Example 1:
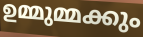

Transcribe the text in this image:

ഉമ്മുമ്മക്കും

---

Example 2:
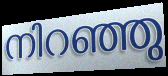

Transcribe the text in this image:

നിറഞ്ഞു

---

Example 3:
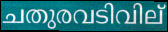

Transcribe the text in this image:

ചതുരവടിവില്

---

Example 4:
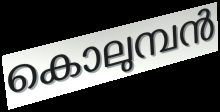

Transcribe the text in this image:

കൊലുമ്പൻ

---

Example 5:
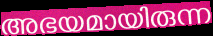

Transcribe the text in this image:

അഭയമായിരുന്ന